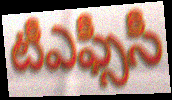
టీఎఫ్సీసీ